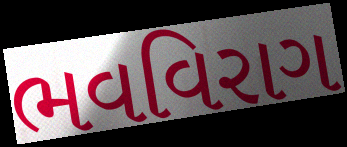
ભવવિરાગ